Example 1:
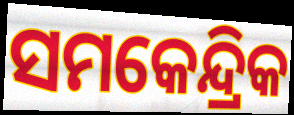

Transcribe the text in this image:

ସମକେନ୍ଦ୍ରିକ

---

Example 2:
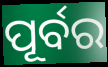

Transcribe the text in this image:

ପୂର୍ବର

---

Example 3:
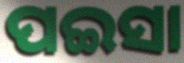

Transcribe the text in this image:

ପଇସା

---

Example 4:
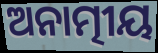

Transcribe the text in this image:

ଅନାତ୍ମୀୟ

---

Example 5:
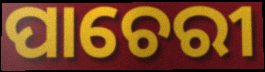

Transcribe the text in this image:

ପାଚେରୀ